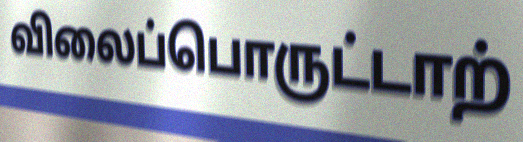
விலைப்பொருட்டாற்